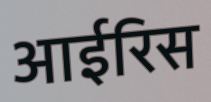
आईरिस